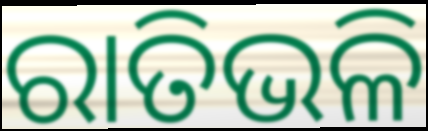
ରାତିଭଳି